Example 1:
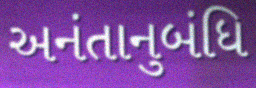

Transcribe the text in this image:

અનંતાનુબંધિ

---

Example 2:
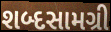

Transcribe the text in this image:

શબ્દસામગ્રી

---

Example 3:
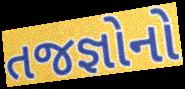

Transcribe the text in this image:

તજજ્ઞોનો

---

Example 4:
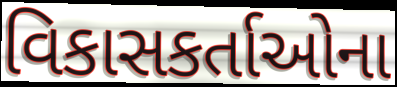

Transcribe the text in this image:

વિકાસકર્તાઓના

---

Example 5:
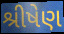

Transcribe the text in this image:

શ્રીષેણ